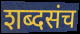
शब्दसंच